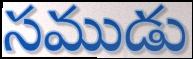
సముడు